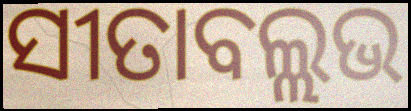
ସୀତାବଲ୍ଲଭ